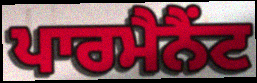
ਪਾਰਮੈਨੈਂਟ